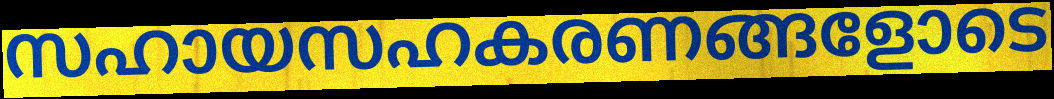
സഹായസഹകരണങ്ങളോടെ